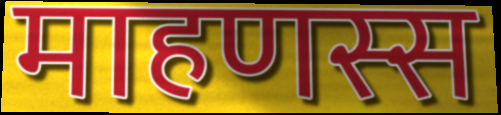
माहणस्स